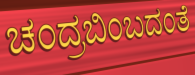
ಚಂದ್ರಬಿಂಬದಂತೆ